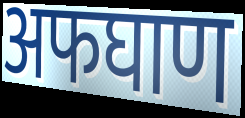
अफघाण